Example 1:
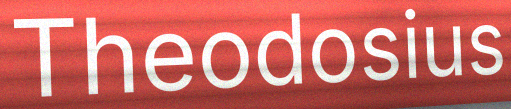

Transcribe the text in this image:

Theodosius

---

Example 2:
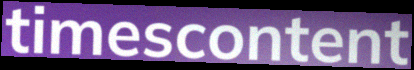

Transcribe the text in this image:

timescontent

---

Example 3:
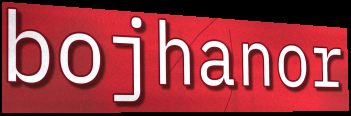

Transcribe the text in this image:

bojhanor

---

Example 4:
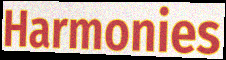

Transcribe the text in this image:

Harmonies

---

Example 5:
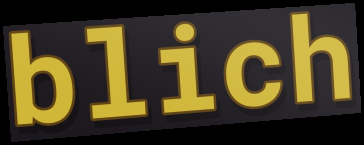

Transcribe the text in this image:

blich